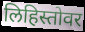
लिहिस्तोवर